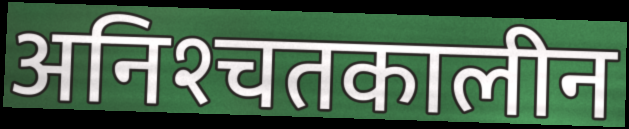
अनिश्चतकालीन